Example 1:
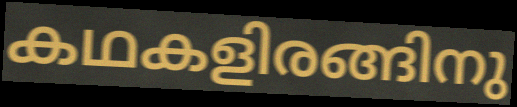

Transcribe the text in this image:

കഥകളിരങ്ങിനു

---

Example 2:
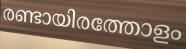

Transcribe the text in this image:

രണ്ടായിരത്തോളം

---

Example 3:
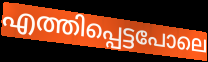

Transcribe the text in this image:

എത്തിപ്പെട്ടപോലെ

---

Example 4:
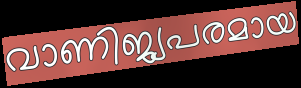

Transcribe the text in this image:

വാണിജ്യപരമായ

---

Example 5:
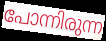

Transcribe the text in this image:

പോന്നിരുന്ന